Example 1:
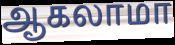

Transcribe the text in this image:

ஆகலாமா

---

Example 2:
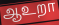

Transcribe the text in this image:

ஆஉறா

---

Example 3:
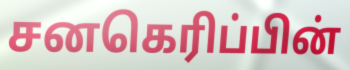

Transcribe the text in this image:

சனகெரிப்பின்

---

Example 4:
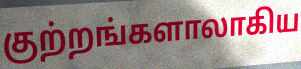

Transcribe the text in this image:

குற்றங்களாலாகிய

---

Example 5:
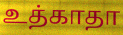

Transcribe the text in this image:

உத்காதா